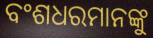
ବଂଶଧରମାନଙ୍କୁ